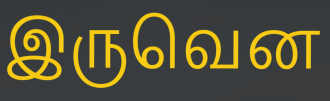
இருவென